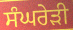
ਸੰਘਰੇੜੀ